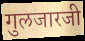
गुलजारजी